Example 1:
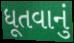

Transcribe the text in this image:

ધૂતવાનું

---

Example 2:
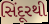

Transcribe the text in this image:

સિંદૂરથી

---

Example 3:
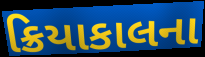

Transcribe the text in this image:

ક્રિયાકાલના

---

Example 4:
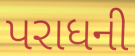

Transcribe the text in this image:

પરાધની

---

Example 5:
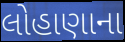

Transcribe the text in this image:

લોહાણાના